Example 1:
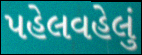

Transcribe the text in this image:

પહેલવહેલું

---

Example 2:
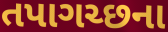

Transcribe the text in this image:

તપાગચ્છના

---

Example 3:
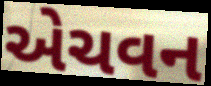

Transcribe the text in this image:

એચવન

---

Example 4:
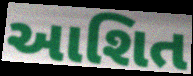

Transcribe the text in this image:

આશિત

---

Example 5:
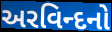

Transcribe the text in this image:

અરવિન્દનો